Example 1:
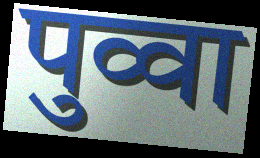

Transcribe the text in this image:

पुव्वा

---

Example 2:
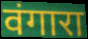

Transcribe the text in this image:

वंगारा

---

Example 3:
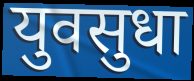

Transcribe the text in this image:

युवसुधा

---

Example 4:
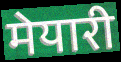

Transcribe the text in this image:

मेयारी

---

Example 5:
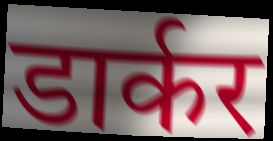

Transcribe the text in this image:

डार्कर